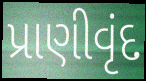
પ્રાણીવૃંદ